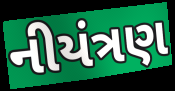
નીયંત્રણ